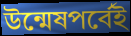
উন্মেষপর্বেই